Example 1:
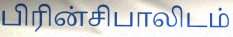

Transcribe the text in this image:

பிரின்சிபாலிடம்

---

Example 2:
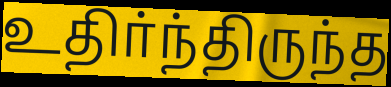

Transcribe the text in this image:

உதிர்ந்திருந்த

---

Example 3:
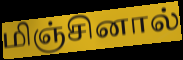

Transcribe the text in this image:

மிஞ்சினால்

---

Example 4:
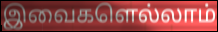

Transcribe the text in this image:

இவைகளெல்லாம்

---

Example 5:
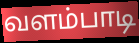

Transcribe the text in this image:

வளம்பாடி